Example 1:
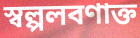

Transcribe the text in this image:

স্বল্পলবণাক্ত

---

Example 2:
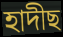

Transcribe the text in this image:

হাদীছ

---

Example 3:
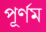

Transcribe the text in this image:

পূর্ণম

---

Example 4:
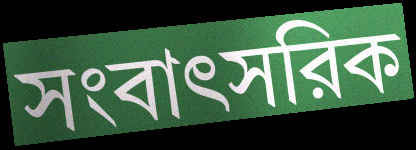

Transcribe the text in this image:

সংবাৎসরিক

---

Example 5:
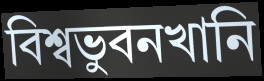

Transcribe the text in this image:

বিশ্বভুবনখানি